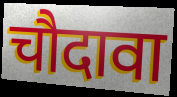
चौदावा